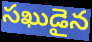
సఖుడైన